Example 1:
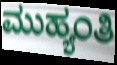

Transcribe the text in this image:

ಮುಹ್ಯಂತಿ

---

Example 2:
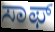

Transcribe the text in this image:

ಸಾಫ್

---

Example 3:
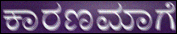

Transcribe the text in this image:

ಕಾರಣಮಾಗೆ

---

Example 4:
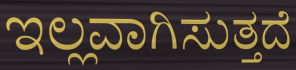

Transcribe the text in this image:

ಇಲ್ಲವಾಗಿಸುತ್ತದೆ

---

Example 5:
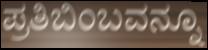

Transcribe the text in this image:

ಪ್ರತಿಬಿಂಬವನ್ನೂ